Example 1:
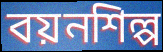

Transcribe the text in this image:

বয়নশিল্প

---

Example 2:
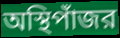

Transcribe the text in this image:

অস্থিপাঁজর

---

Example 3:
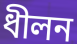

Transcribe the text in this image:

ধীলন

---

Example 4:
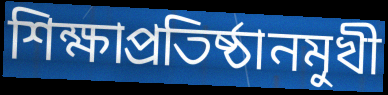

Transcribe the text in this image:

শিক্ষাপ্রতিষ্ঠানমুখী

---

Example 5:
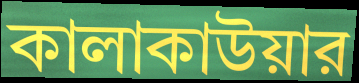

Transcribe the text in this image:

কালাকাউয়ার